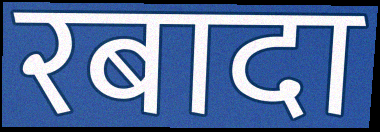
रबादा